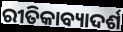
ରୀତିକାବ୍ୟାଦର୍ଶ